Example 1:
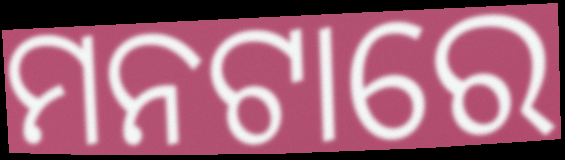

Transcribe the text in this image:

ମନଟାରେ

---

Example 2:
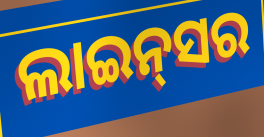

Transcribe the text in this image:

ଲାଇନ୍‍ସର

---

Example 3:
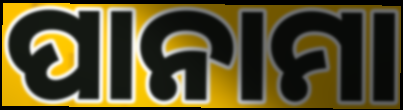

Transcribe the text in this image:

ପାନାମା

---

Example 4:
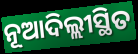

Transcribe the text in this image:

ନୂଆଦିଲ୍ଲୀସ୍ଥିତ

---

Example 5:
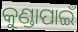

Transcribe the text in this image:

କୁଣ୍ଡାପାଇଁ